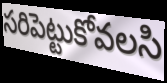
సరిపెట్టుకోవలసి